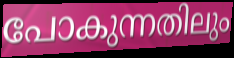
പോകുന്നതിലും